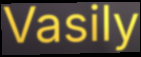
Vasily